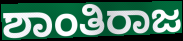
ಶಾಂತಿರಾಜ